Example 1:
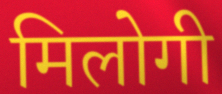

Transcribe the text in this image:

मिलोगी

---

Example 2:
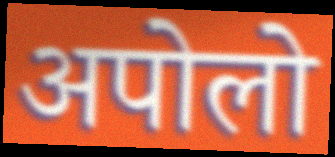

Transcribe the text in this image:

अपोलो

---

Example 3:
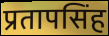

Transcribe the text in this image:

प्रतापसिंह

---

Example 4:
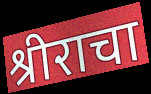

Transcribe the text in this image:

श्रीराचा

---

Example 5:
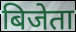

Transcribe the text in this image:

बिजेता